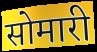
सोमारी